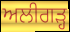
ਅਲੀਗੜ੍ਹ